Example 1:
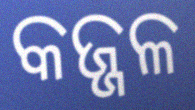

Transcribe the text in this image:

କଜ୍ଜଳ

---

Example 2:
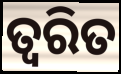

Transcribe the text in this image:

ତ୍ଵରିତ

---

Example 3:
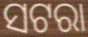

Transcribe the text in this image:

ସଟରା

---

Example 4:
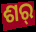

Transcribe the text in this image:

ଶର୍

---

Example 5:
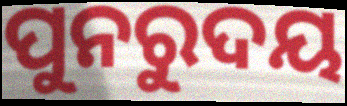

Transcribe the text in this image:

ପୁନରୁଦୟ